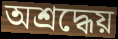
অশ্রদ্ধেয়